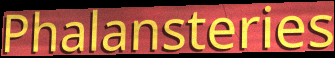
Phalansteries